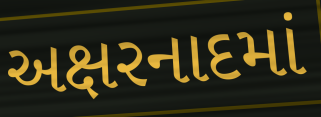
અક્ષરનાદમાં